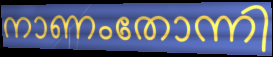
നാണംതോന്നി